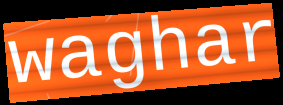
waghar